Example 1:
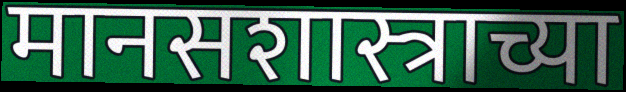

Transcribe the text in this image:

मानसशास्त्राच्या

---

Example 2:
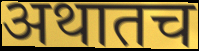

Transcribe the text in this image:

अथातच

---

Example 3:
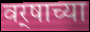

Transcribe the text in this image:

वर्षाच्या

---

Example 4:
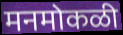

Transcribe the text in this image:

मनमोकळी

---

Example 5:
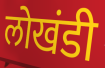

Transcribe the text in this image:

लोखंडी